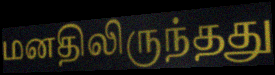
மனதிலிருந்தது